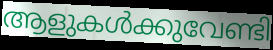
ആളുകൾക്കുവേണ്ടി